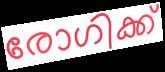
രോഗിക്ക്